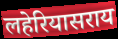
लहेरियासराय